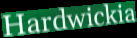
Hardwickia